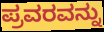
ಪ್ರವರವನ್ನು